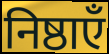
निष्ठाएँ